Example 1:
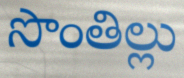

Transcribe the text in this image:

సొంతిల్లు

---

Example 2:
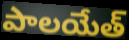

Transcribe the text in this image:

పాలయేత్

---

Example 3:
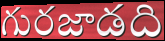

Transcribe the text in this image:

గురజాడది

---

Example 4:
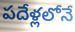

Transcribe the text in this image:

పదేళ్లలోనే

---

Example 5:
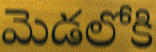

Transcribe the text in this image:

మెడలోకి